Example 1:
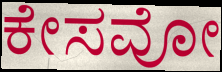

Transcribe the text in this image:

ಕೇಸವೋ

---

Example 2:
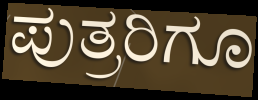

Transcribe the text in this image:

ಪುತ್ರರಿಗೂ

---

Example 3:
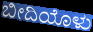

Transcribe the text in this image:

ಬೀದಿಯೊಳು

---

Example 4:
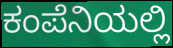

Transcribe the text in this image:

ಕಂಪೆನಿಯಲ್ಲಿ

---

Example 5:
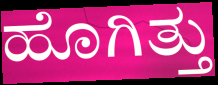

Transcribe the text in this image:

ಹೊಗಿತ್ತು